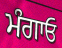
ਮੰਗਾਓ